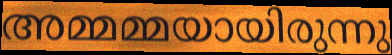
അമ്മമ്മയായിരുന്നു